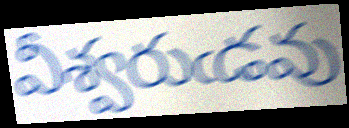
వీశ్వరుఁడవు